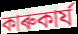
কাৰুকাৰ্য